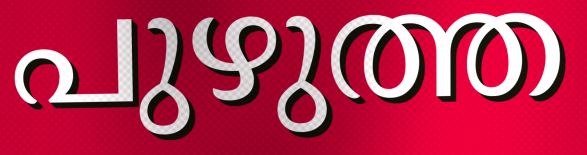
പുഴുത്ത